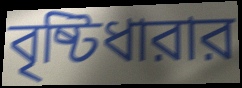
বৃষ্টিধারার